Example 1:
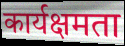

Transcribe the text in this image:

कार्यक्षमता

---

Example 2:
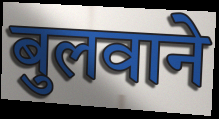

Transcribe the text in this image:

बुलवाने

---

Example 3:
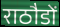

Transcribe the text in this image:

राठौडों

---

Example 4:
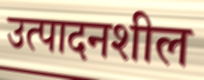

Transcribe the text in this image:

उत्पादनशील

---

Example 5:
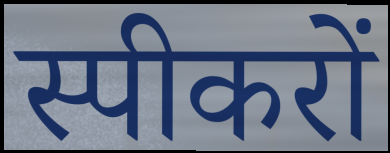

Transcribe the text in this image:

स्पीकरों